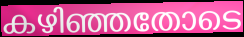
കഴിഞ്ഞതോടെ